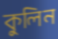
কুলিন